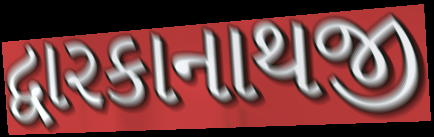
દ્વારકાનાથજી